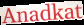
Anadkat